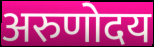
अरुणोदय